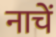
नाचें